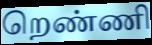
றெண்ணி